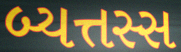
બ્યત્તસ્સ